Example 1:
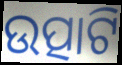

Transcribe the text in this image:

ଉତ୍ପାଟି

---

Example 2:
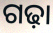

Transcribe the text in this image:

ଗଢ଼ା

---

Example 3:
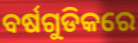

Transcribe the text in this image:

ବର୍ଷଗୁଡିକରେ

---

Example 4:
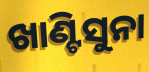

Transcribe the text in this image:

ଖାଣ୍ଟିସୁନା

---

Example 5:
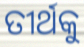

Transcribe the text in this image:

ତୀର୍ଥକୁ